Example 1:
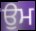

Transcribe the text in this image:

ਉਮ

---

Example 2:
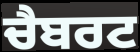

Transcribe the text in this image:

ਚੈਬਰਟ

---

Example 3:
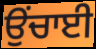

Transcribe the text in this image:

ਉਂਚਾਈ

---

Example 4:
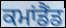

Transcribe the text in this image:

ਕਮਾਂਡੈਂਡ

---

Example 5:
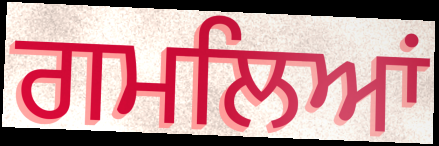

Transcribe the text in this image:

ਗਮਲਿਆਂ